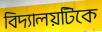
বিদ্যালয়টিকে